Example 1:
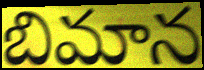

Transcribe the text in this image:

బిమాన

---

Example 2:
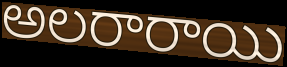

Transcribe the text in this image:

అలరారాయి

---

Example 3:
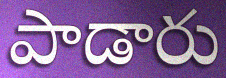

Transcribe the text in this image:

పాడారు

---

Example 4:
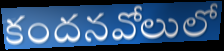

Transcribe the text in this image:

కందనవోలులో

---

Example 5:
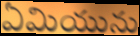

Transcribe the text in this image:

ఏమియును